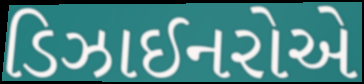
ડિઝાઈનરોએ